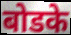
बोडके